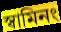
স্বামিনং